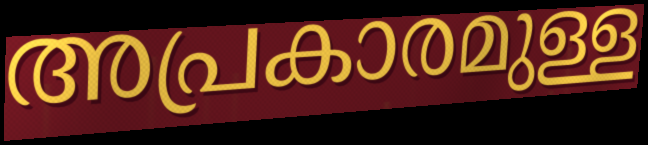
അപ്രകാരമുള്ള